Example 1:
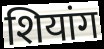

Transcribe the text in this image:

शियांग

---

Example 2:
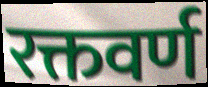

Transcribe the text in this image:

रक्तवर्ण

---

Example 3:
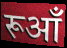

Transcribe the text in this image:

रूआँ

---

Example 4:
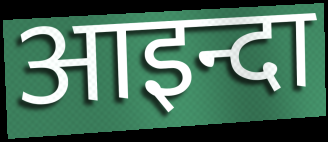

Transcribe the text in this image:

आइन्दा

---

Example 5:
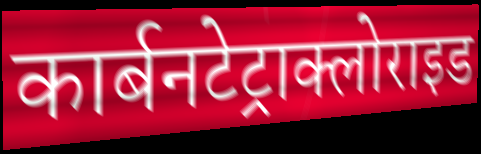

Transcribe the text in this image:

कार्बनटेट्राक्लोराइड